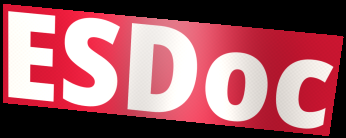
ESDoc